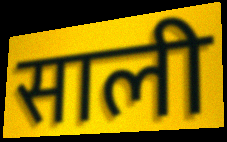
साली